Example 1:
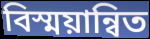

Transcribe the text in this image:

বিস্ময়ান্বিত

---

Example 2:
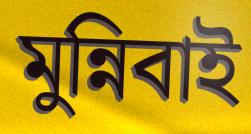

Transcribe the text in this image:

মুন্নিবাই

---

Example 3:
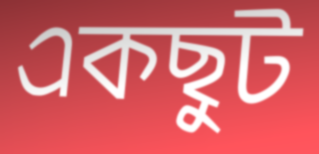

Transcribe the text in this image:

একছুট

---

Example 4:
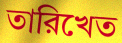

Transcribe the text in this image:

তারিখেত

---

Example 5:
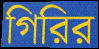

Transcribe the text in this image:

গিরির